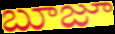
బూజూ